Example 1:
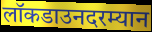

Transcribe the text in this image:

लॉकडाउनदरम्यान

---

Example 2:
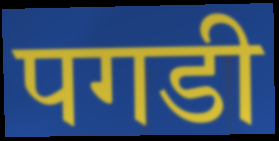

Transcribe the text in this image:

पगडी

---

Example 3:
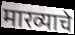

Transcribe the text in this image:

मारव्याचे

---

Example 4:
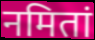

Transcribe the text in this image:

नमितां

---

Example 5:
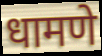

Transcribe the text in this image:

धामणे